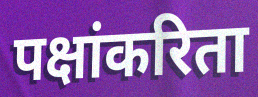
पक्षांकरिता